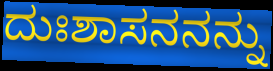
ದುಃಶಾಸನನನ್ನು